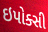
ઇપોક્સી